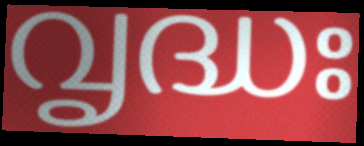
വൃദ്ധഃ